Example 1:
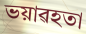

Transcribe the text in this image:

ভয়াৱহতা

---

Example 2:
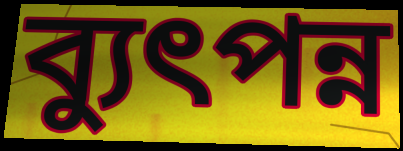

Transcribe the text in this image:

ব্যুৎপন্ন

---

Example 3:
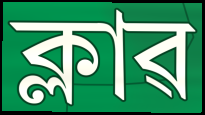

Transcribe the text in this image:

ক্লাৱ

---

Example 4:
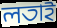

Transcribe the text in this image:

লতাই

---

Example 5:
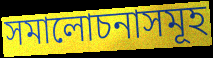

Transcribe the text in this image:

সমালোচনাসমূহ